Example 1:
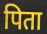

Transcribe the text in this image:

पिता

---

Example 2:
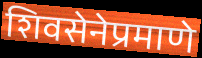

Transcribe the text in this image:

शिवसेनेप्रमाणे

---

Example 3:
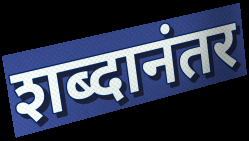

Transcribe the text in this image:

शब्दानंतर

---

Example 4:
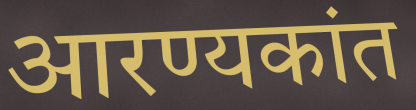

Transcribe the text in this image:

आरण्यकांत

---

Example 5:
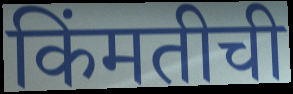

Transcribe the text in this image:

किंमतीची